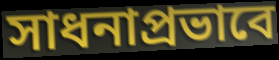
সাধনাপ্রভাবে